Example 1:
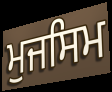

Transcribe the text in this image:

ਮੁਜਸਿਮ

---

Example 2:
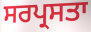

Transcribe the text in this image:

ਸਰਪ੍ਰਸਤਾ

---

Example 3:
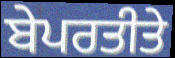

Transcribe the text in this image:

ਬੇਪਰਤੀਤੇ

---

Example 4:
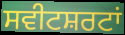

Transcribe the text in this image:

ਸਵੀਟਸ਼ਰਟਾਂ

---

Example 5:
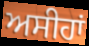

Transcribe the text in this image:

ਅਸੀਹਾਂ